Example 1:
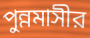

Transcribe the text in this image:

পুন্নমাসীর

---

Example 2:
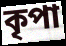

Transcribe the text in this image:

কৃপা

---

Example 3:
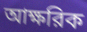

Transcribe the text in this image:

আক্ষরিক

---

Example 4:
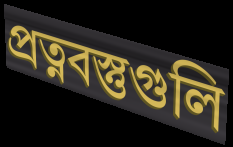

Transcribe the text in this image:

প্রত্নবস্তুগুলি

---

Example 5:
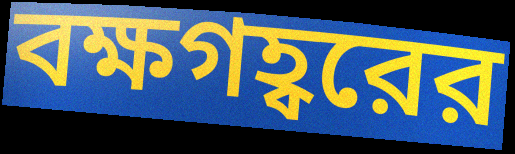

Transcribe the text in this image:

বক্ষগহ্বরের